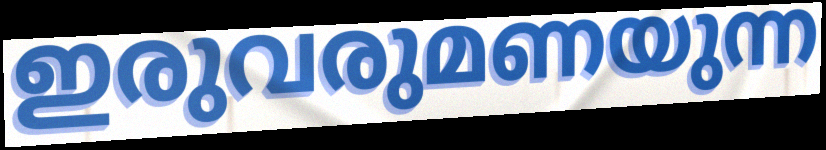
ഇരുവരുമണയുന്ന